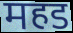
महड